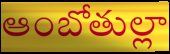
ఆంబోతుల్లా